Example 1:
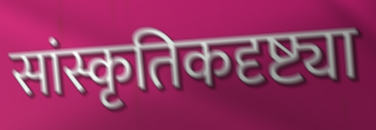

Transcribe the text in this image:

सांस्कृतिकदृष्ट्या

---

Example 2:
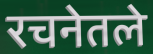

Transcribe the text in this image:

रचनेतले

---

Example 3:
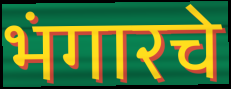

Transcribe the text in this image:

भंगारचे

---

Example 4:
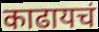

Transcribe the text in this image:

काढायचं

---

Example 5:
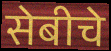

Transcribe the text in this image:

सेबीचे